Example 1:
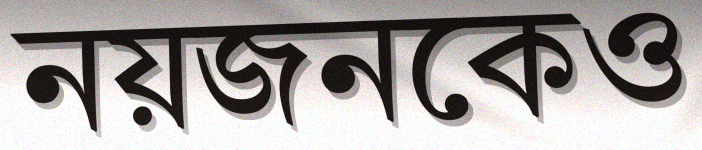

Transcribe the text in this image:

নয়জনকেও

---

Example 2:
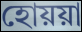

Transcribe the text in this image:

হোয়য়া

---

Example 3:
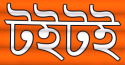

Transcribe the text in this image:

টইটই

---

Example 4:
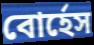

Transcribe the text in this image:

বোর্হেস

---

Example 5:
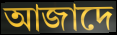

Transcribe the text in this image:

আজাদে